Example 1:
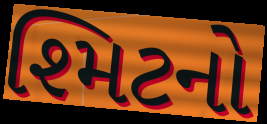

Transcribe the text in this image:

શ્મિટનો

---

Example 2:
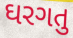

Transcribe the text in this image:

ઘરગતુ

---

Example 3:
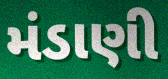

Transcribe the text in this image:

મંડાણી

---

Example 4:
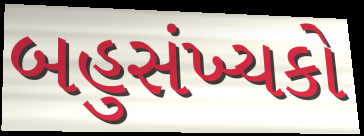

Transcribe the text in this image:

બહુસંખ્યકો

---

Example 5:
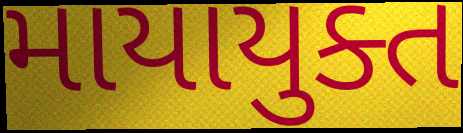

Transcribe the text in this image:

માયાયુક્ત